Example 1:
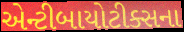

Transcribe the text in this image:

એન્ટીબાયોટીક્સના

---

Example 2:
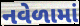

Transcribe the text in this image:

નવેળામાં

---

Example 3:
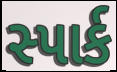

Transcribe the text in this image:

સ્પાર્ક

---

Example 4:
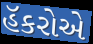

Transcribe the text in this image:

હૅકરોએ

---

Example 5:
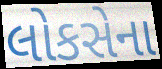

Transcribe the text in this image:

લોકસેના